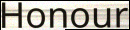
Honour